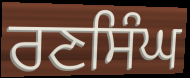
ਰਣਸਿੰਘ